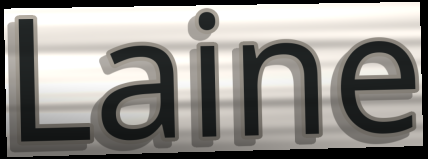
Laine